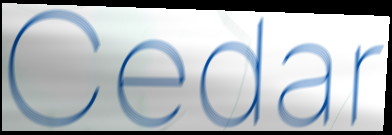
Cedar